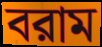
বরাম